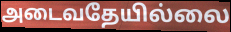
அடைவதேயில்லை